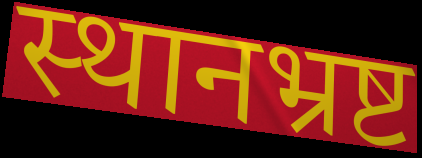
स्थानभ्रष्ट